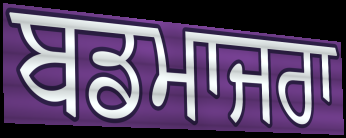
ਬਡਮਾਜਰਾ